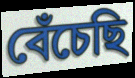
বেঁচেছি